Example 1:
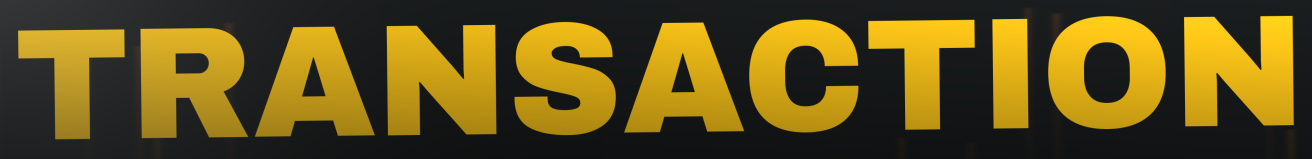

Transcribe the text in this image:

TRANSACTION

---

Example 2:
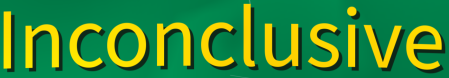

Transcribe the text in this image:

Inconclusive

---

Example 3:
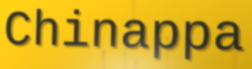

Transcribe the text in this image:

Chinappa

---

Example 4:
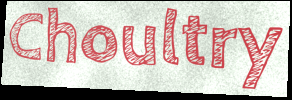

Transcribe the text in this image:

Choultry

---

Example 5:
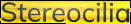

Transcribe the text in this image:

Stereocilia